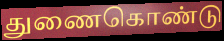
துணைகொண்டு